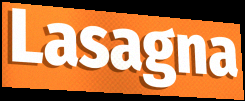
Lasagna